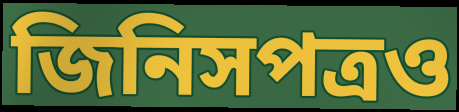
জিনিসপত্রও